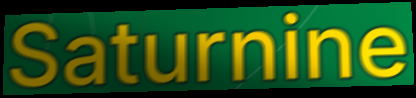
Saturnine